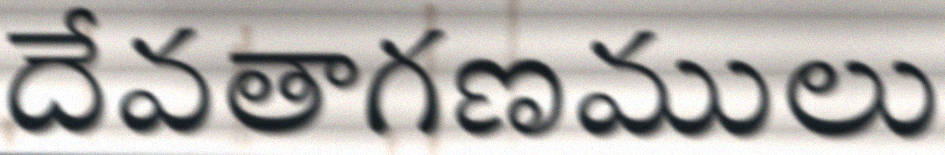
దేవతాగణములు